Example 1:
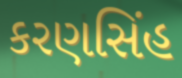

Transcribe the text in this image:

કરણસિંહ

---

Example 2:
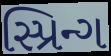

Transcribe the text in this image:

સ્પ્રિન્ગ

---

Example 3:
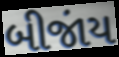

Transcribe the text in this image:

બીજાંય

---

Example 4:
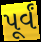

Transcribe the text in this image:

પૂર્વં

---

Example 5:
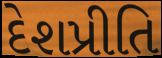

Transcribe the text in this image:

દેશપ્રીતિ